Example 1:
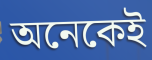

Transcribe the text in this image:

অনেকেই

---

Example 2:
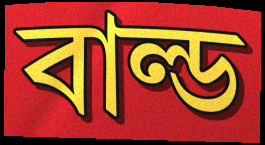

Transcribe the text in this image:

বাল্ড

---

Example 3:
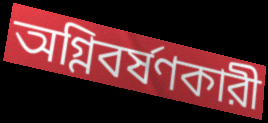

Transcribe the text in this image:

অগ্নিবর্ষণকারী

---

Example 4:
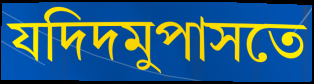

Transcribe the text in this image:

যদিদমুপাসতে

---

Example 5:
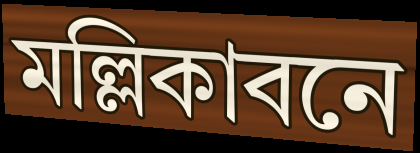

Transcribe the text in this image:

মল্লিকাবনে